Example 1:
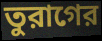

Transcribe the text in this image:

তুরাগের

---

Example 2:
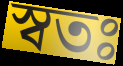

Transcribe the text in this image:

স্বতঃ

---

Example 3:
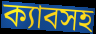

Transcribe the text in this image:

ক্যাবসহ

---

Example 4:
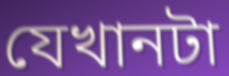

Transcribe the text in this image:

যেখানটা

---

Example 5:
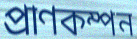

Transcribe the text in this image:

প্রাণকম্পন